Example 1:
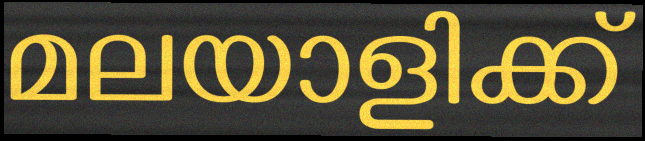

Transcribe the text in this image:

മലയാളിക്ക്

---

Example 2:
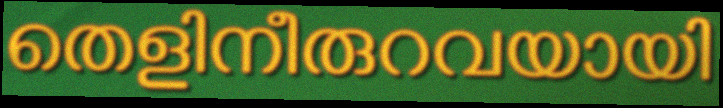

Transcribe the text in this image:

തെളിനീരുറവയായി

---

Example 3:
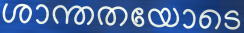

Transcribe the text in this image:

ശാന്തതയോടെ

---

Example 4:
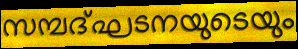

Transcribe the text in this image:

സമ്പദ്ഘടനയുടെയും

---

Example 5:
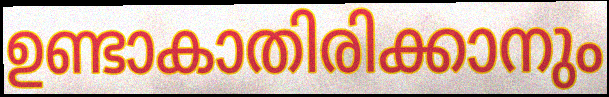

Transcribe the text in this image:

ഉണ്ടാകാതിരിക്കാനും